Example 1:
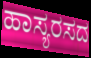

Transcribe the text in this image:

ಹಾಸ್ಯರಸದ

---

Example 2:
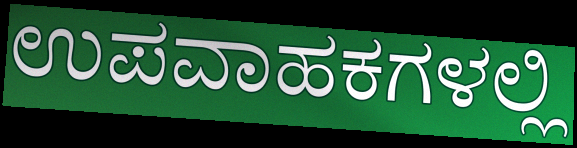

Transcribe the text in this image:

ಉಪವಾಹಕಗಳಲ್ಲಿ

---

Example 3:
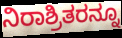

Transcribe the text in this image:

ನಿರಾಶ್ರಿತರನ್ನೂ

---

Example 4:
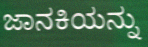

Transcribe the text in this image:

ಜಾನಕಿಯನ್ನು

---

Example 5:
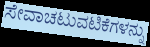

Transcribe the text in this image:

ಸೇವಾಚಟುವಟಿಕೆಗಳನ್ನು